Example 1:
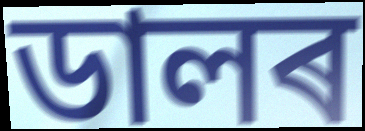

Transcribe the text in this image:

ডালৰ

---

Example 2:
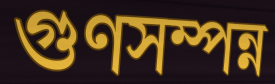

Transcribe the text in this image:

গুণসম্পন্ন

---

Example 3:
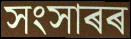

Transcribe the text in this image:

সংসাৰৰ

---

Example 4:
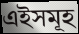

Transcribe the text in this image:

এইসমূহ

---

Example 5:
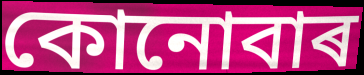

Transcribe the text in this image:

কোনোবাৰ